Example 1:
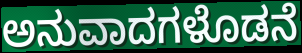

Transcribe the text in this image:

ಅನುವಾದಗಳೊಡನೆ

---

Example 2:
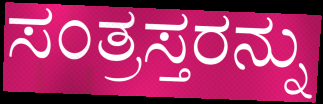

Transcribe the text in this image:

ಸಂತ್ರಸ್ತರನ್ನು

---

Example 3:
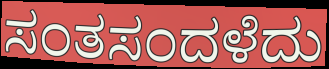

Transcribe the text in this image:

ಸಂತಸಂದಳೆದು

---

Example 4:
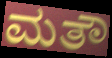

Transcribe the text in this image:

ಮತೌ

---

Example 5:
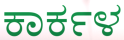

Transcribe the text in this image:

ಕಾರ್ಕಳ